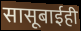
सासूबाईही